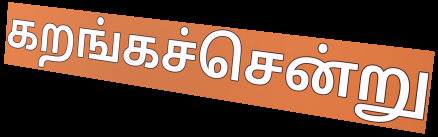
கறங்கச்சென்று